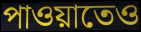
পাওয়াতেও